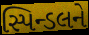
સ્પિન્ડલને